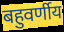
बहुवर्णीय